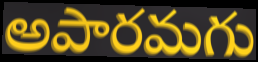
అపారమగు